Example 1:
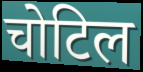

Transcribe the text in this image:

चोटिल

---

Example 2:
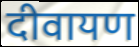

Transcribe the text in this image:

दीवायण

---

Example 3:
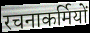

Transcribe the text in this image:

रचनाकर्मियों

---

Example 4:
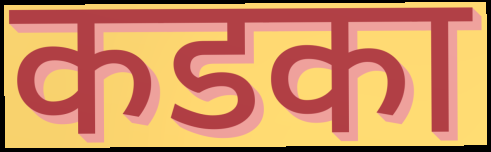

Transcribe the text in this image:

कडका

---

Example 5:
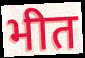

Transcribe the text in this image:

भीत